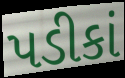
પડીકાં